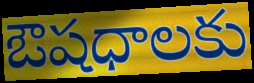
ఔషధాలకు